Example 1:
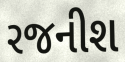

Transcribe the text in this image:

રજનીશ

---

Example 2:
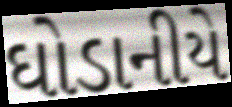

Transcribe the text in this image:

ઘોડાનીયે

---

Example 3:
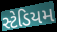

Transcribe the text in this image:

સ્ટેડિયમ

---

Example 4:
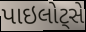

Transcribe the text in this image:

પાઇલોટ્સે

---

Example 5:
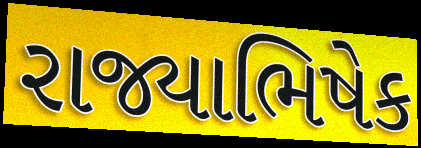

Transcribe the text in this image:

રાજ્યાભિષેક